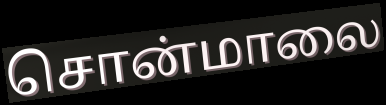
சொன்மாலை